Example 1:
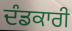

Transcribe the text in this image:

ਦੰਡਕਾਰੀ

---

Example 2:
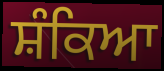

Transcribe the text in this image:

ਸ਼ੰਕਿਆ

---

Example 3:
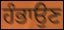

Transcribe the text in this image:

ਹੰਭਾਉਣ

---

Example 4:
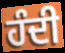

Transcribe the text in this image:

ਹੰਦੀ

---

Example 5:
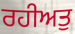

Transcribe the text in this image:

ਰਹੀਅਤੁ